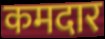
कमदार